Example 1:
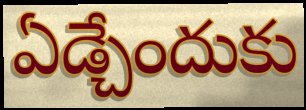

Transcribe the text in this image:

ఏడ్చేందుకు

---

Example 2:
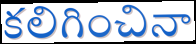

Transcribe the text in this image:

కలిగించినా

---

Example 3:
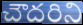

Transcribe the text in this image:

చౌదరిని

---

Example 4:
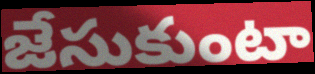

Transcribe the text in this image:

జేసుకుంటా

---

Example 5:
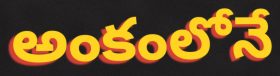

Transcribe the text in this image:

అంకంలోనే